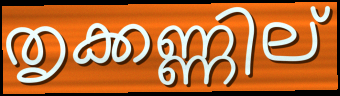
തൃക്കണ്ണില്